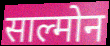
साल्मोन